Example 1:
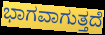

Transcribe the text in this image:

ಭಾಗವಾಗುತ್ತದೆ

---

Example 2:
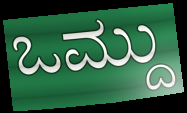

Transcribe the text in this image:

ಒಮ್ದು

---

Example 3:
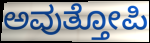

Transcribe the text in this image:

ಅವುತ್ತೋಪಿ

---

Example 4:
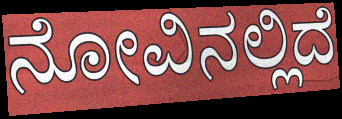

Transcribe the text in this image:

ನೋವಿನಲ್ಲಿದೆ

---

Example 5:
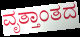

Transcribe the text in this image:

ವೃತ್ತಾಂತದ